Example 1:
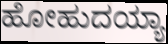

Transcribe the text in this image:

ಹೋಹುದಯ್ಯಾ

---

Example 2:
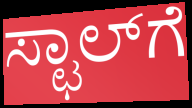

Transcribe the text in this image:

ಸ್ಟಾಲ್‌ಗೆ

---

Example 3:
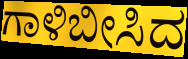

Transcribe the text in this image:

ಗಾಳಿಬೀಸಿದ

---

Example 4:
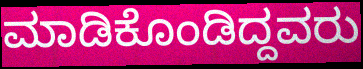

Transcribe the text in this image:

ಮಾಡಿಕೊಂಡಿದ್ದವರು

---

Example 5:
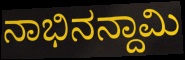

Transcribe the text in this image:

ನಾಭಿನನ್ದಾಮಿ